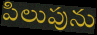
పిలుపును